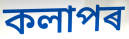
কলাপৰ